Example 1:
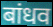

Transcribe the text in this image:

बांधव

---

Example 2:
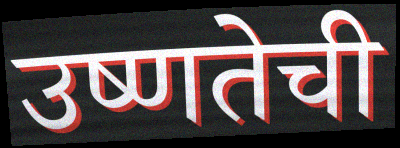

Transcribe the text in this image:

उष्णतेची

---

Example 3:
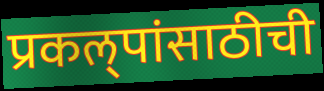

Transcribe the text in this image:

प्रकल्पांसाठीची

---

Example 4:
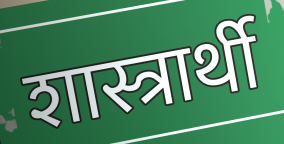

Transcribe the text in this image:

शास्त्रार्थी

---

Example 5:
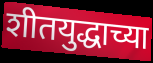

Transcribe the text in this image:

शीतयुद्धाच्या